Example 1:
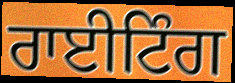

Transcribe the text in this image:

ਰਾਈਟਿੰਗ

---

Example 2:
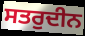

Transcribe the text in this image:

ਸਤਰੁਦੀਨ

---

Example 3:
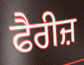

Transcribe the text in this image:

ਫੈਰੀਜ਼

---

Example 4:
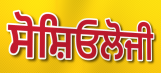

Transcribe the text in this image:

ਸੋਸ਼ਿਓਲੋਜੀ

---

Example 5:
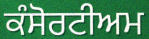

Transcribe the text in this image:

ਕੰਸੋਰਟੀਅਮ